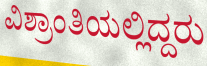
ವಿಶ್ರಾಂತಿಯಲ್ಲಿದ್ದರು